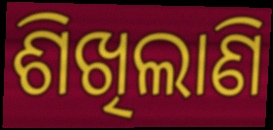
ଶିଖିଲାଣି